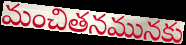
మంచితనమునకు